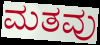
ಮತವು